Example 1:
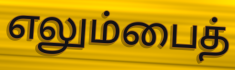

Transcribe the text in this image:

எலும்பைத்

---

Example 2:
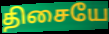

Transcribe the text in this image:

திசையே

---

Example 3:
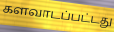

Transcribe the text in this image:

களவாடப்பட்டது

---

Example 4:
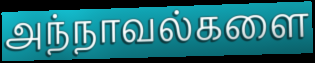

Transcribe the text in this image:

அந்நாவல்களை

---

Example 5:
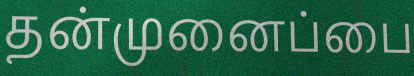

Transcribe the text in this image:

தன்முனைப்பை